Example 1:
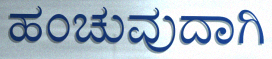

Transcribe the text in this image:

ಹಂಚುವುದಾಗಿ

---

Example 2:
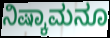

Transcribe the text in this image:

ನಿಷ್ಕಾಮನೂ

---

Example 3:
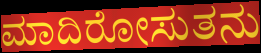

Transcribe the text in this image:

ಮಾದಿರೋಸುತನು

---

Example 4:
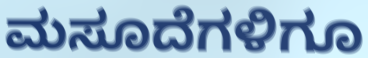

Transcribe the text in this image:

ಮಸೂದೆಗಳಿಗೂ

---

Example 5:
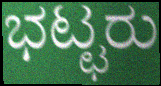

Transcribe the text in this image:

ಭಟ್ಟರು